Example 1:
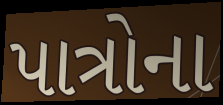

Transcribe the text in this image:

પાત્રોના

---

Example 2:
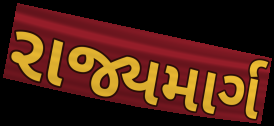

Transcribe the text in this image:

રાજ્યમાર્ગ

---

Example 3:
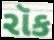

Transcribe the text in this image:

રૉક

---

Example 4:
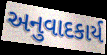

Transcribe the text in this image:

અનુવાદકાર્ય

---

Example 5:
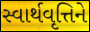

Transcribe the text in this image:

સ્વાર્થવૃત્તિને